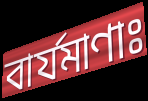
বার্যমাণাঃ